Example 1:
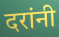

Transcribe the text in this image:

दरांनी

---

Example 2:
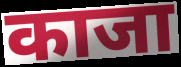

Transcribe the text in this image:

काजा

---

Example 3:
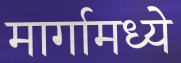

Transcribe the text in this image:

मार्गामध्ये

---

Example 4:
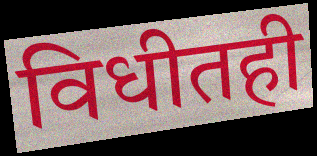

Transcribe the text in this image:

विधीतही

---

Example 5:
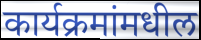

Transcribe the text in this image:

कार्यक्रमांमधील